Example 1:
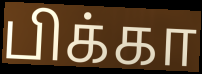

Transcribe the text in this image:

பிக்கா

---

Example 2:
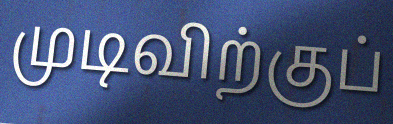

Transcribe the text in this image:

முடிவிற்குப்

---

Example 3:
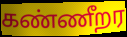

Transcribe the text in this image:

கண்ணீறர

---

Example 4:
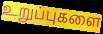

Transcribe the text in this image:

உறுப்புகளை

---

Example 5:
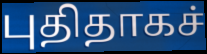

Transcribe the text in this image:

புதிதாகச்